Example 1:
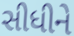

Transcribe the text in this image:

સીધીને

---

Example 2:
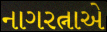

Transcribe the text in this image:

નાગરત્નાએ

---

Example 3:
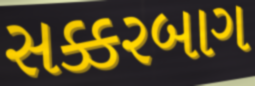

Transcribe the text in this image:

સક્કરબાગ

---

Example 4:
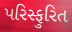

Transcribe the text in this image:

પરિસ્ફુરિત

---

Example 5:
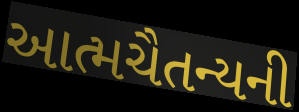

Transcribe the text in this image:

આત્મચૈતન્યની